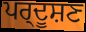
ਪਰ੍ਦੂਸ਼ਣ